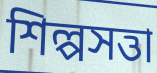
শিল্পসত্তা